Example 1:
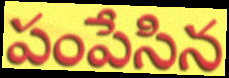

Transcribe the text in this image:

పంపేసిన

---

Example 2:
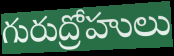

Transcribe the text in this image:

గురుద్రోహులు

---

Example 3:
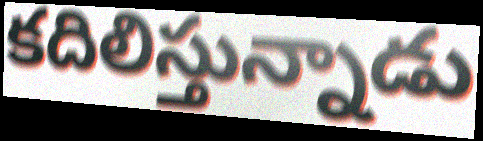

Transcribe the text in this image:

కదిలిస్తున్నాడు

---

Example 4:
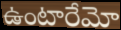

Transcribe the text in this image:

ఉంటారేమో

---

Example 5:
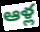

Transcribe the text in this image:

ఆళ్ల